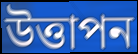
উত্তাপন